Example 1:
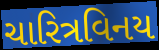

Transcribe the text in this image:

ચારિત્રવિનય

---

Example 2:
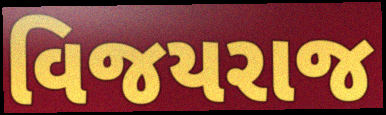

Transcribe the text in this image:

વિજયરાજ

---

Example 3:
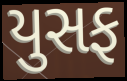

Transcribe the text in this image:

યુસફ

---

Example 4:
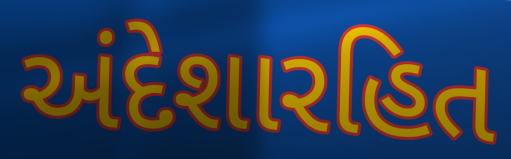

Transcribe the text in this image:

અંદેશારહિત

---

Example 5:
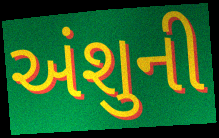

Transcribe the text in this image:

અંશુની